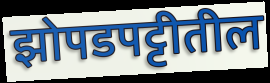
झोपडपट्टीतील